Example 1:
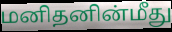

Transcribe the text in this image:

மனிதனின்மீது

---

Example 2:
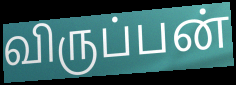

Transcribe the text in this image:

விருப்பன்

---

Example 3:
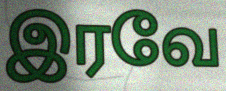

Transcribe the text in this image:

இரவே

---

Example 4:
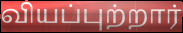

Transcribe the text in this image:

வியப்புற்றார்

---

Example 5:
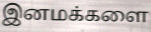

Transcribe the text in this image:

இனமக்களை